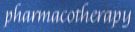
pharmacotherapy